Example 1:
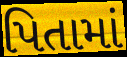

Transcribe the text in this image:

પિતામાં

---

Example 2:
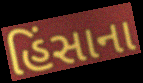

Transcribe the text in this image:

હિંસાના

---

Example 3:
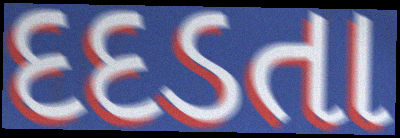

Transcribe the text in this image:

દદડતા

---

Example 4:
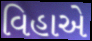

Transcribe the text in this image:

વિહાએ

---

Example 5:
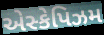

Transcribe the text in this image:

એસ્કેપિઝમ